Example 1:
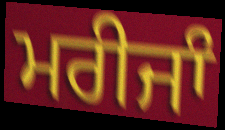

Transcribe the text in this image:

ਮਰੀਜਾੰ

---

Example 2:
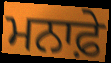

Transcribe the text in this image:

ਮਨਾਫ਼ੇ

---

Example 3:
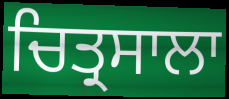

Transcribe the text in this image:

ਚਿਤ੍ਰਸਾਲਾ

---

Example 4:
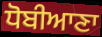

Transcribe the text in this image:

ਧੋਬੀਆਣਾ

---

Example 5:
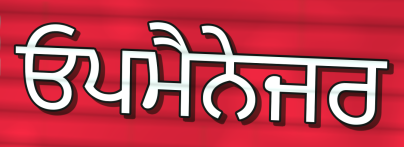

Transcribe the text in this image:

ਓਪਮੈਨੇਜਰ